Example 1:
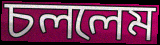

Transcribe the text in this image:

চললেম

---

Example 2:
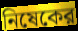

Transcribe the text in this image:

নিষেকের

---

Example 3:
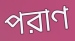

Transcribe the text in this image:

পরাণ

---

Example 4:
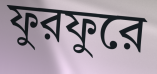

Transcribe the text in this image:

ফুরফুরে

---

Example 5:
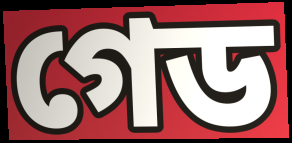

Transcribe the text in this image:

গেড